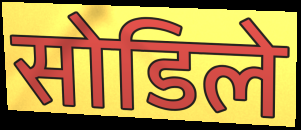
सोडिले